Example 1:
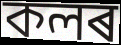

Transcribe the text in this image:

কলৰ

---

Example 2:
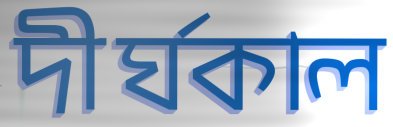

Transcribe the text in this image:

দীৰ্ঘকাল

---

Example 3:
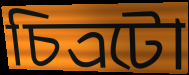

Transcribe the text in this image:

চিত্ৰটো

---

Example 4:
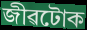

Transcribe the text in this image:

জীৱটোক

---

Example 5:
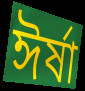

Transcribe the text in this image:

ঈৰ্ষা